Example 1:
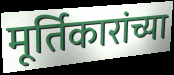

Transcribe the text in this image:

मूर्तिकारांच्या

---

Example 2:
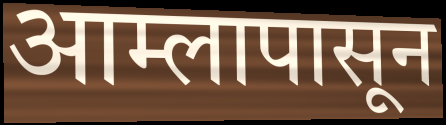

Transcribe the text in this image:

आम्लापासून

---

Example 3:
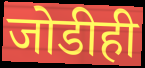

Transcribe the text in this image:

जोडीही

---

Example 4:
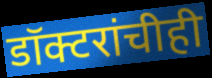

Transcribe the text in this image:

डॉक्टरांचीही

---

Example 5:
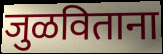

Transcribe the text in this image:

जुळविताना